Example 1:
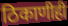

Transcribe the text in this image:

ठिकाणीही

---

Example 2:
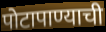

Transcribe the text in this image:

पोटापाण्याची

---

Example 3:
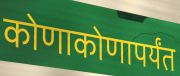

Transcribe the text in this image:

कोणाकोणापर्यंत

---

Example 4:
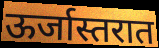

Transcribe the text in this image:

ऊर्जास्तरात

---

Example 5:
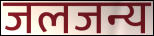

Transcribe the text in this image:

जलजन्य